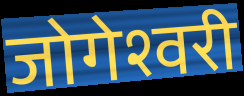
जोगेश्वरी